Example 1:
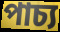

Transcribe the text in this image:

পাচ্য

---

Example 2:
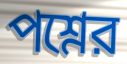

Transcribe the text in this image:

পশ্নের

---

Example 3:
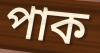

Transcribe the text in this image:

পাক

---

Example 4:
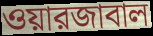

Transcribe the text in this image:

ওয়ারজাবাল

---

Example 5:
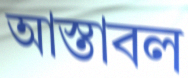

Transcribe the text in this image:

আস্তাবল